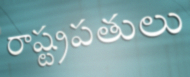
రాష్ట్రపతులు